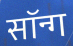
सॉन्ग